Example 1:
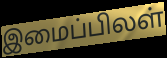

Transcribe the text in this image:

இமைப்பிலள்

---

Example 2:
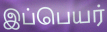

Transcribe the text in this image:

இப்பெயர்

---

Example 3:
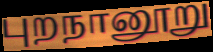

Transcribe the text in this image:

புறநானூறு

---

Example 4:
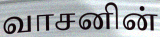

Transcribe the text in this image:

வாசனின்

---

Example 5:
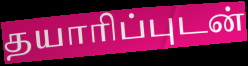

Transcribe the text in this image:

தயாரிப்புடன்